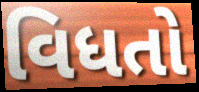
વિધતો